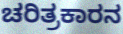
ಚರಿತ್ರಕಾರನ